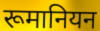
रूमानियन